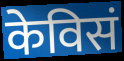
केविसं